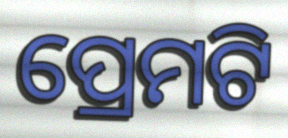
ପ୍ରେମଟି